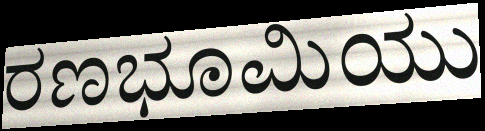
ರಣಭೂಮಿಯು